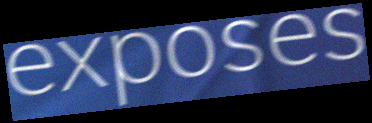
exposes